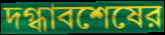
দগ্ধাবশেষের